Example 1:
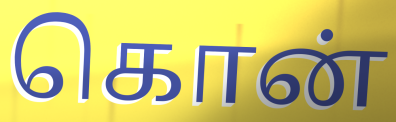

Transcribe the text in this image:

கொன்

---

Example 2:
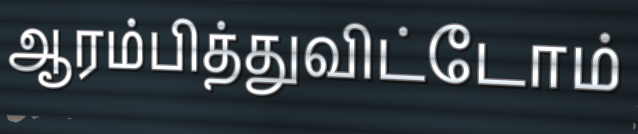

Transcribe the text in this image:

ஆரம்பித்துவிட்டோம்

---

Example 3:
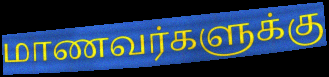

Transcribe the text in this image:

மாணவர்களுக்கு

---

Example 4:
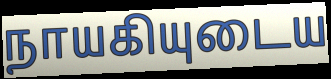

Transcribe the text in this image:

நாயகியுடைய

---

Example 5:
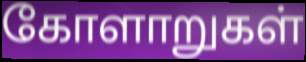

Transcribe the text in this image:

கோளாறுகள்